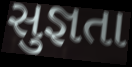
સુજ્ઞતા